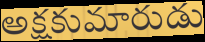
అక్షకుమారుడు